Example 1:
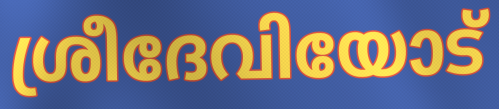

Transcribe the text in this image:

ശ്രീദേവിയോട്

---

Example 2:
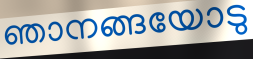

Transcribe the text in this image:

ഞാനങ്ങയോടു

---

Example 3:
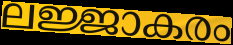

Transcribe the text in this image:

ലജ്ജാകരം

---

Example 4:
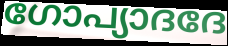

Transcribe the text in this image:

ഗോപ്യാദദേ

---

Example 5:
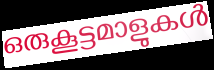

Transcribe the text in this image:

ഒരുകൂട്ടമാളുകൾ